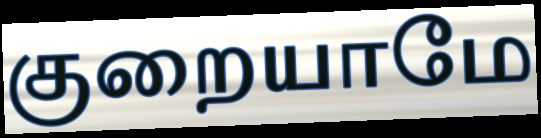
குறையாமே